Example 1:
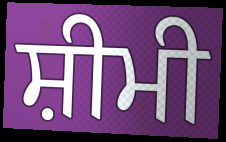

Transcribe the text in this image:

ਸ਼ੀਮੀ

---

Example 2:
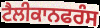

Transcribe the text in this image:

ਟੈਲੀਕਾਨਫਰੰਸ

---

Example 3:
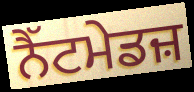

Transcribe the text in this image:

ਨੈੱਟਮੇਡਜ਼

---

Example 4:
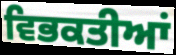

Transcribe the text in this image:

ਵਿਭਕਤੀਆਂ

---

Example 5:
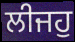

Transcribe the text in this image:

ਲੀਜਹੁ